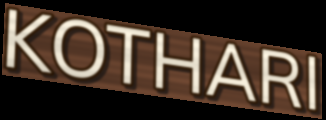
KOTHARI